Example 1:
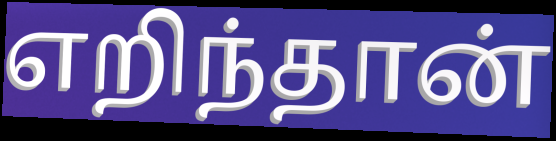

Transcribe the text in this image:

எறிந்தான்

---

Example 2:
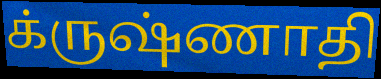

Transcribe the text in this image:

க்ருஷ்ணாதி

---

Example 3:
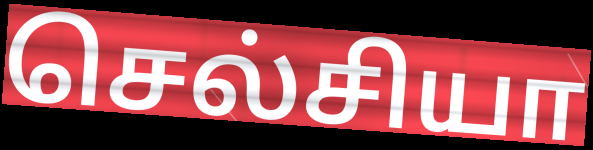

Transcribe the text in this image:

செல்சியா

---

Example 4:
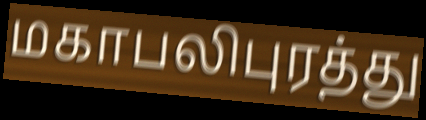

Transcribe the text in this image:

மகாபலிபுரத்து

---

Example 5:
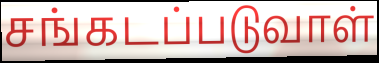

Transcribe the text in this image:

சங்கடப்படுவாள்